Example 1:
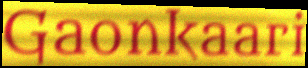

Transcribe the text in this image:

Gaonkaari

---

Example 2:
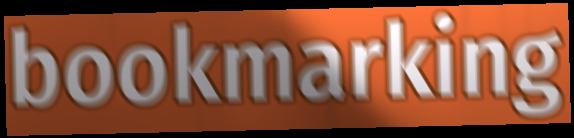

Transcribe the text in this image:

bookmarking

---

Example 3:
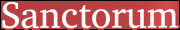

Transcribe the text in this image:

Sanctorum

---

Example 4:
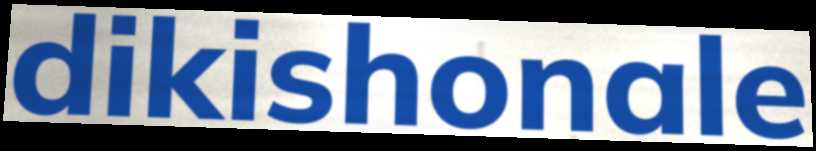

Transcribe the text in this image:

dikishonale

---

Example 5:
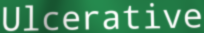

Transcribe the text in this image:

Ulcerative